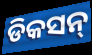
ଡିକସନ୍